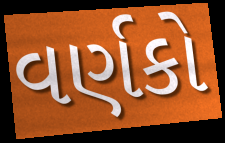
વર્ણકો